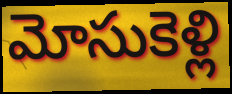
మోసుకెళ్లి